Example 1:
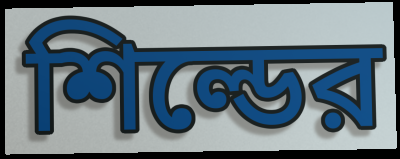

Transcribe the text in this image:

শিল্ডের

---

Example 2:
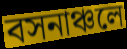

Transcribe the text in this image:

বসনাঞ্চলে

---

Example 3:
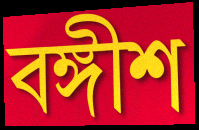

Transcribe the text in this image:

বঙ্গীশ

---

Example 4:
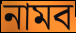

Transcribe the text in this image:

নামব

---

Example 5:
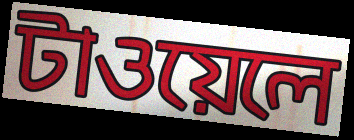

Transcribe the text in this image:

টাওয়েলে